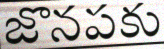
జొనపకు